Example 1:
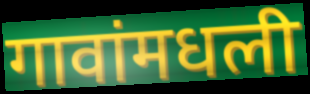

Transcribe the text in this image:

गावांमधली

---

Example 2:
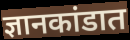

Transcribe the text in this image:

ज्ञानकांडात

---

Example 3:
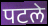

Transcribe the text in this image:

पटले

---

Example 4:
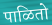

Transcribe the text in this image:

पाळितो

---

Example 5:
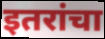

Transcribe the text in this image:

इतरांचा